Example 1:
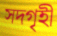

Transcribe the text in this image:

সদগৃহী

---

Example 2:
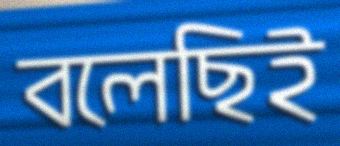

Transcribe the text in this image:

বলেছিই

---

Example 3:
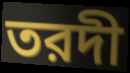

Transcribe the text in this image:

তরদী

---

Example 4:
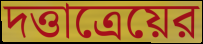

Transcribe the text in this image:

দত্তাত্রেয়ের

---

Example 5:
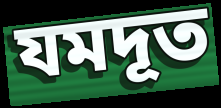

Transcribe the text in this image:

যমদূত